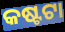
କଷ୍ଟଟା